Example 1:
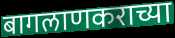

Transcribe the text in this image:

बागलाणकराच्या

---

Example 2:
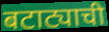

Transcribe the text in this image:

बटाट्याची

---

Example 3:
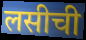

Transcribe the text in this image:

लसीची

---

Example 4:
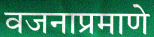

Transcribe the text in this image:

वजनाप्रमाणे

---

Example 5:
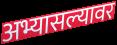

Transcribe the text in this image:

अभ्यासल्यावर